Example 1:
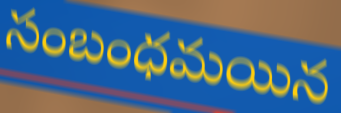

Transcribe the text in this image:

సంబంధమయిన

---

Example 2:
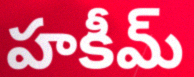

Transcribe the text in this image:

హకీమ్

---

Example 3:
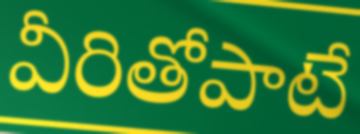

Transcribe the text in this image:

వీరితోపాటే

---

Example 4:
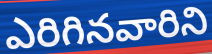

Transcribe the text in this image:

ఎరిగినవారిని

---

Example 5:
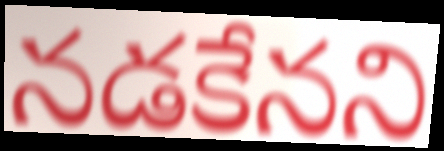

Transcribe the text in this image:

నడకేనని